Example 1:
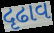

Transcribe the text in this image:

દૃઢાવ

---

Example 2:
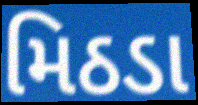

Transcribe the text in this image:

મિઠડા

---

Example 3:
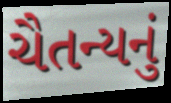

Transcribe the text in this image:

ચૈતન્યનું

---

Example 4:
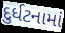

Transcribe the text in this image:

દુર્ધટનામાં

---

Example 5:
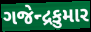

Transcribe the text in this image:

ગજેન્દ્રકુમાર